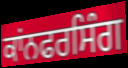
ਕਾਂਨਫਰਸਿੰਗ